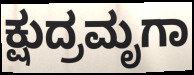
ಕ್ಷುದ್ರಮೃಗಾ